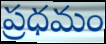
ప్రధమం